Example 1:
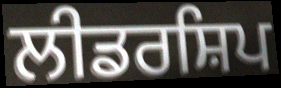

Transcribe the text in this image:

ਲੀਡਰਸ਼ਿਪ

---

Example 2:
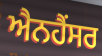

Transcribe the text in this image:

ਐਨਹੈਂਸਰ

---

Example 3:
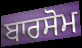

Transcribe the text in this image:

ਬਾਰਸੋਮ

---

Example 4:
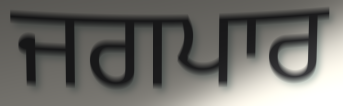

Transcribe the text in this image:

ਜਗਪਾਰ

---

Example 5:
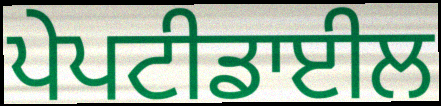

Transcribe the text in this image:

ਪੇਪਟੀਡਾਈਲ